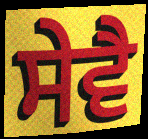
ਸੇਵੈ